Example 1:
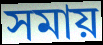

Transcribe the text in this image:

সমায়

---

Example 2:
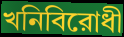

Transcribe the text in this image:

খনিবিরোধী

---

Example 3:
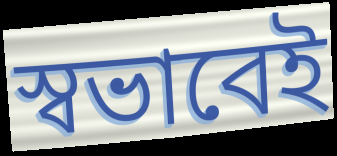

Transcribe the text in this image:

স্বভাবেই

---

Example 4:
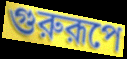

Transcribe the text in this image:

গুরুরূপে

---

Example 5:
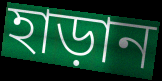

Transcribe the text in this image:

হাড়ান